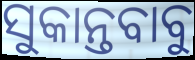
ସୁକାନ୍ତବାବୁ